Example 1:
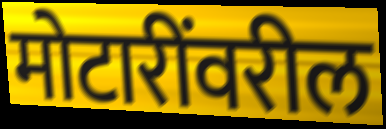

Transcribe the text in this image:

मोटारींवरील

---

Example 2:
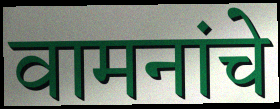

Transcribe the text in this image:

वामनांचे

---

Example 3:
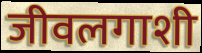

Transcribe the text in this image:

जीवलगाशी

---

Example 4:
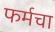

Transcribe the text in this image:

फर्मचा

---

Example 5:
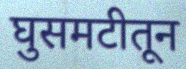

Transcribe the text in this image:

घुसमटीतून